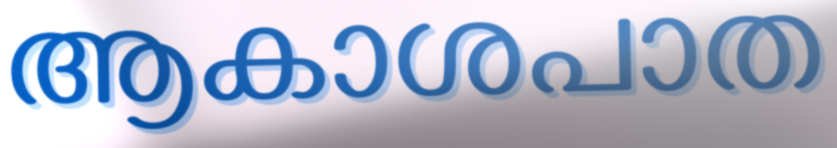
ആകാശപാത